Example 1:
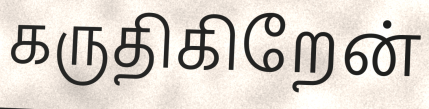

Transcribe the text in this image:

கருதிகிறேன்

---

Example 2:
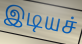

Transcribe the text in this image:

இடியச்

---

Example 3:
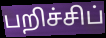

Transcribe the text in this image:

பறிச்சிப்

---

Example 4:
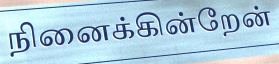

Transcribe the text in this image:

நினைக்கின்றேன்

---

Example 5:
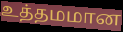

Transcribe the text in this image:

உத்தமமான